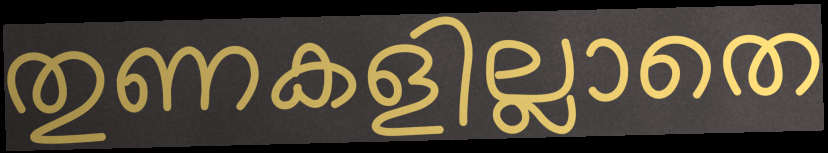
തുണകളില്ലാതെ